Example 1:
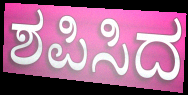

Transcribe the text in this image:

ಶಪಿಸಿದ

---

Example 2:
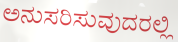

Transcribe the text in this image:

ಅನುಸರಿಸುವುದರಲ್ಲಿ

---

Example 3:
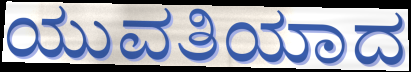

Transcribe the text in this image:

ಯುವತಿಯಾದ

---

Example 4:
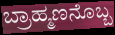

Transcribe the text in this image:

ಬ್ರಾಹ್ಮಣನೊಬ್ಬ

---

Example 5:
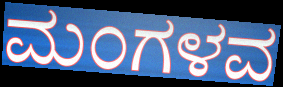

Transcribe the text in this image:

ಮಂಗಳವ